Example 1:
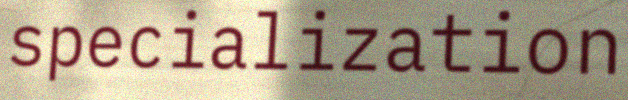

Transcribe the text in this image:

specialization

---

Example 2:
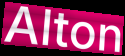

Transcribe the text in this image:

Alton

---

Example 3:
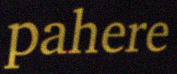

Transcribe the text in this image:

pahere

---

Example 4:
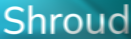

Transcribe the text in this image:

Shroud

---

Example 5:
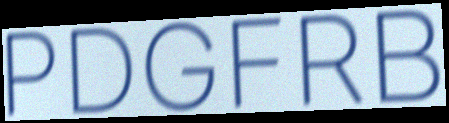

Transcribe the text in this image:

PDGFRB